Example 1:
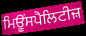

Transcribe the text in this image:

ਮਿਊਂਸਪੈਲਿਟੀਜ਼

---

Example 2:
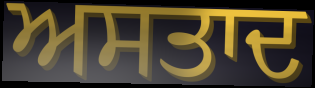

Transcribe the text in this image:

ਅਸਤਾਦ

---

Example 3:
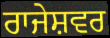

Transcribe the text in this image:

ਰਾਜੇਸ਼ਵਰ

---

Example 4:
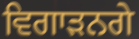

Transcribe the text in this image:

ਵਿਗਾੜਨਗੇ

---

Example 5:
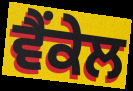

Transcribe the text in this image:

ਵੈਂਕੇਲ